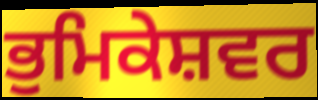
ਭੁਮਿਕੇਸ਼ਵਰ